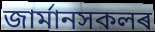
জাৰ্মানসকলৰ